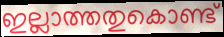
ഇല്ലാത്തതുകൊണ്ട്